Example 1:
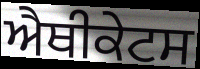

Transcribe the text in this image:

ਐਥੀਕੇਟਸ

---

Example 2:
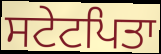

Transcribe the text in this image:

ਸਟੇਟਪਿਤਾ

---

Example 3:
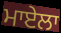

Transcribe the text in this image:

ਮਾਏਲਾ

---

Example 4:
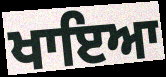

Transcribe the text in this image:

ਖਾਇਆ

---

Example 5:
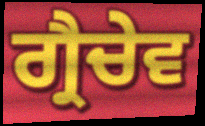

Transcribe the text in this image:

ਗ੍ਰੈਚੇਵ